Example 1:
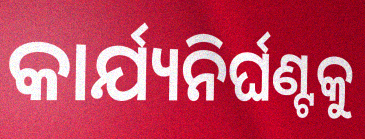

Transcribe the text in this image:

କାର୍ଯ୍ୟନିର୍ଘଣ୍ଟକୁ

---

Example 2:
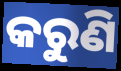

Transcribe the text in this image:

କରୁଣି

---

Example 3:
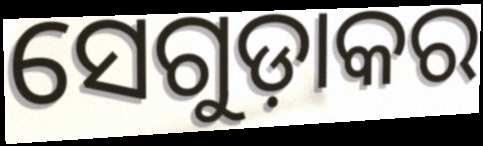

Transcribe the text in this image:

ସେଗୁଡ଼ାକର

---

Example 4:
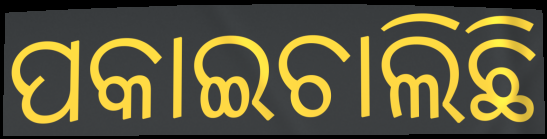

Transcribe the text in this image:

ପକାଇଚାଲିଛି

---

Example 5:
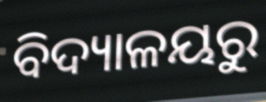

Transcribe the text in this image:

ବିଦ୍ୟାଳୟରୁ